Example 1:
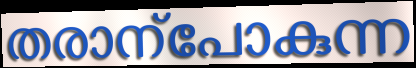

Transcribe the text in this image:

തരാന്പോകുന്ന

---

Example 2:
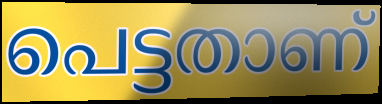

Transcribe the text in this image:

പെട്ടതാണ്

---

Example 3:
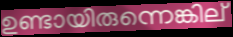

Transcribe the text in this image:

ഉണ്ടായിരുന്നെങ്കില്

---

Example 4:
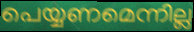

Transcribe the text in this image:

പെയ്യണമെന്നില്ല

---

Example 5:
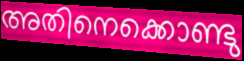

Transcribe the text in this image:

അതിനെക്കൊണ്ടു